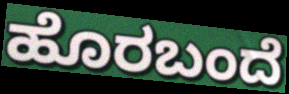
ಹೊರಬಂದೆ